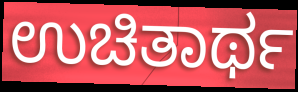
ಉಚಿತಾರ್ಥ